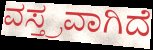
ವಸ್ತ್ರವಾಗಿದೆ